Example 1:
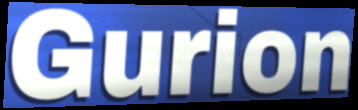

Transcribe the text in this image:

Gurion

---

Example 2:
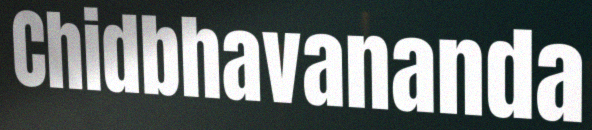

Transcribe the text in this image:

Chidbhavananda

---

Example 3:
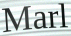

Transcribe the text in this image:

Marl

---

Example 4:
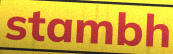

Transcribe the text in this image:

stambh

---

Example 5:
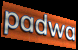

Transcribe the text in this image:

padwa